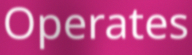
Operates